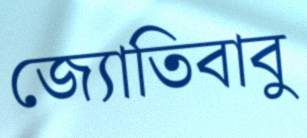
জ্যোতিবাবু